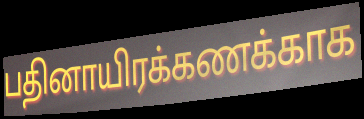
பதினாயிரக்கணக்காக